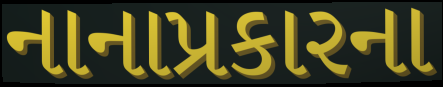
નાનાપ્રકારના